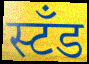
स्टँड